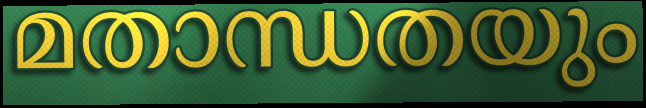
മതാന്ധതയും